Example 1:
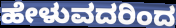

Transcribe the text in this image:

ಹೇಳುವದರಿಂದ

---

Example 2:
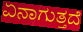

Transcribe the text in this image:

ಏನಾಗುತ್ತದೆ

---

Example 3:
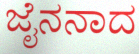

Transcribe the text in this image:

ಜೈನನಾದ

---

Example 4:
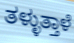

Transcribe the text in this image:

ತಳ್ಳುತ್ತಾಳೆ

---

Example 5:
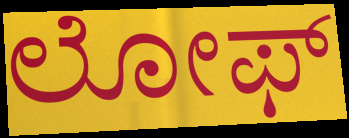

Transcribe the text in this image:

ಲೋಫ್